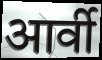
आर्वी